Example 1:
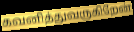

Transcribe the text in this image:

கவனித்துவருகிறேன்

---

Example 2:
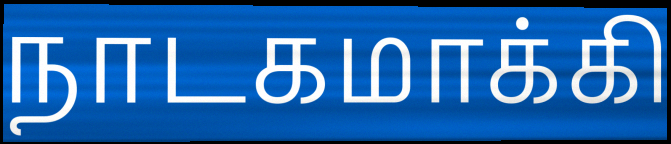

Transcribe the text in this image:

நாடகமாக்கி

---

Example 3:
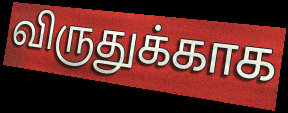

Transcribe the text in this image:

விருதுக்காக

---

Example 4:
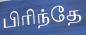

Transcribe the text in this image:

பிரிந்தே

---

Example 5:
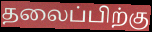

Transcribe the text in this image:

தலைப்பிற்கு